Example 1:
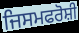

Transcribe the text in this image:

ਜਿਸਮਫਰੋਸ਼ੀ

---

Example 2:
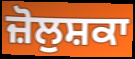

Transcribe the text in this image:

ਜ਼ੋਲੁਸ਼ਕਾ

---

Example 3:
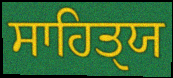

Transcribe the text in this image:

ਸਾਹਿਤੑਯ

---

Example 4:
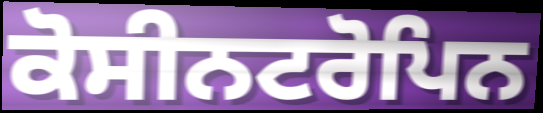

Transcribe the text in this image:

ਕੋਸੀਨਟਰੋਪਿਨ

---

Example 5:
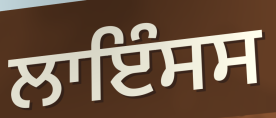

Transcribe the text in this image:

ਲਾਇੰਸਸ